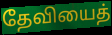
தேவியைத்